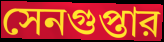
সেনগুপ্তার